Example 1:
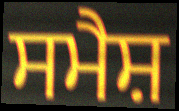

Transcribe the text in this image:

ਸਮੈਸ਼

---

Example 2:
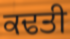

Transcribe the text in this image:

ਕਢਤੀ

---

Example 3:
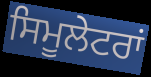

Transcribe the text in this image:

ਸਿਮੂਲੇਟਰਾਂ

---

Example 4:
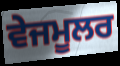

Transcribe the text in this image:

ਵੇਜਮੂਲਰ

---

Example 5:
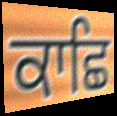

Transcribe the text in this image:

ਕਾਛਿ